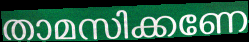
താമസിക്കണേ